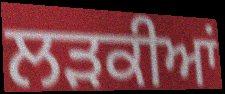
ਲੜਕੀਆਂ